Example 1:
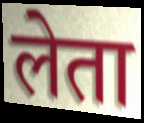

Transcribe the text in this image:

लेता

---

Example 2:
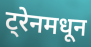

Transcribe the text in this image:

ट्रेनमधून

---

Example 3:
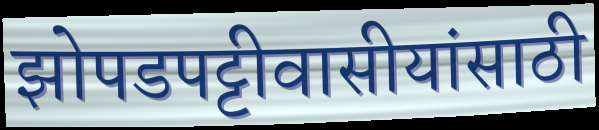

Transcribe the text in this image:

झोपडपट्टीवासीयांसाठी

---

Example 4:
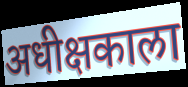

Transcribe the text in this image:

अधीक्षकाला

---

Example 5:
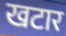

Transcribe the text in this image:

खटार